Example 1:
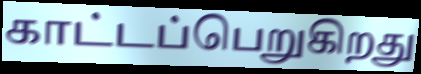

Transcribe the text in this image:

காட்டப்பெறுகிறது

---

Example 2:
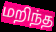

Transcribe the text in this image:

மறிந்த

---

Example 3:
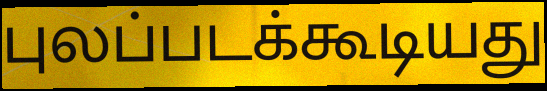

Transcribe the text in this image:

புலப்படக்கூடியது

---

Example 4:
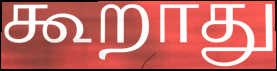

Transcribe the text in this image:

கூறாது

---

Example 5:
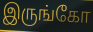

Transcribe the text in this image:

இருங்கோ